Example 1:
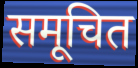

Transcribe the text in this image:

समूचित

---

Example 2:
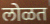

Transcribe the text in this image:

लोळत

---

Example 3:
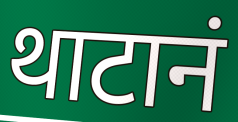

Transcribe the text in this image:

थाटानं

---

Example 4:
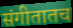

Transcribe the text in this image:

संगीतातच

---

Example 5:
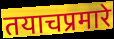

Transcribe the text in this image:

तयाचप्रमारे